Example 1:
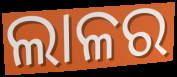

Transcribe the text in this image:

ଲାଳର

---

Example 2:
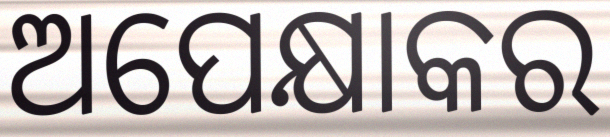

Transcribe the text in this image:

ଅପେକ୍ଷାକର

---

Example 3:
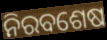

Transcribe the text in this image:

ନିରବଶେଷ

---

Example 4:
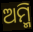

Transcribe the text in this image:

ଅମ୍ମି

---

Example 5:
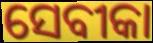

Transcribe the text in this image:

ସେବୀକା